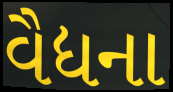
વૈદ્યના